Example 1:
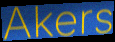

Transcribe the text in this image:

Akers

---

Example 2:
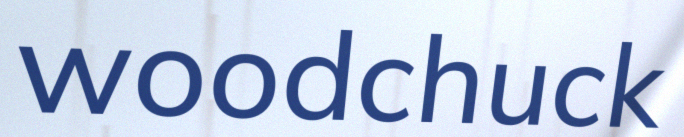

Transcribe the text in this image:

woodchuck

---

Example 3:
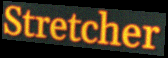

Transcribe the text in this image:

Stretcher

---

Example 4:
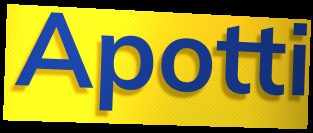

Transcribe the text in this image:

Apotti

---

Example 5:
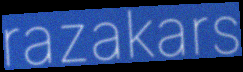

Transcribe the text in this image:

razakars